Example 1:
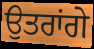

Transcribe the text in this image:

ਉਤਰਾਂਗੇ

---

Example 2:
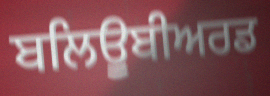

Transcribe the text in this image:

ਬਲਿਊਬੀਅਰਡ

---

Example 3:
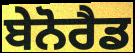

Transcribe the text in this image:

ਬੇਨੋਰੈਡ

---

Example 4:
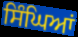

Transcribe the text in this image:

ਸਿੰਘਿਆਂ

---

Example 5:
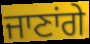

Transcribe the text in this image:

ਜਾਣਾਂਗੇ